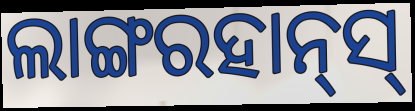
ଲାଙ୍ଗରହାନ୍‌ସ୍